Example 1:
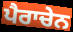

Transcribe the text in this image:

ਪੈਰਾਚੇਨ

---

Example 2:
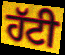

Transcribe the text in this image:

ਹੱਟੀ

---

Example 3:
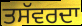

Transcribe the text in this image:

ਤਸੱਵਰਦਾ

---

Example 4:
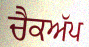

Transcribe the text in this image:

ਚੈਕਅੱਪ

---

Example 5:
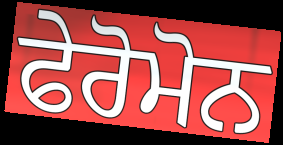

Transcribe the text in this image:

ਫੇਰੋਮੋਨ